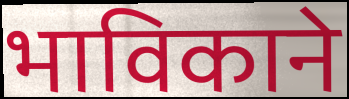
भाविकाने